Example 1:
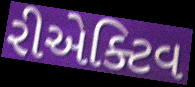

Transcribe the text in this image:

રીએક્ટિવ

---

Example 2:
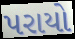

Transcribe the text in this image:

પરાયો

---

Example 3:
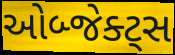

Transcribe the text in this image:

ઓબ્જેક્ટ્સ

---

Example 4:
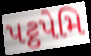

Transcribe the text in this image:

પટ્ઠપેમિ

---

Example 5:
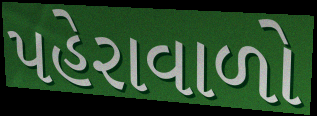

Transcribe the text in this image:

પહેરાવાળો